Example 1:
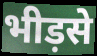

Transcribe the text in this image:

भीड़से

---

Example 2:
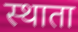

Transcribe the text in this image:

स्थाता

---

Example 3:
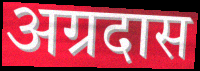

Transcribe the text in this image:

अग्रदास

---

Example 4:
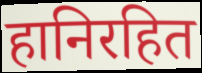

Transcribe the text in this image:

हानिरहित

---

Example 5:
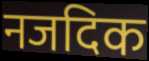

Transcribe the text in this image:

नजदिक